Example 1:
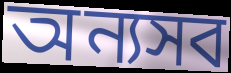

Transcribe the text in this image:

অন্যসব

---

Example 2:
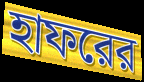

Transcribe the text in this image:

হাফরের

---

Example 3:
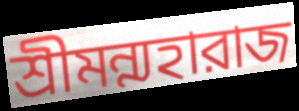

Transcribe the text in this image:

শ্রীমন্মহারাজ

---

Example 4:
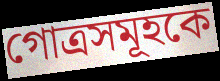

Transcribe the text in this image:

গোত্রসমূহকে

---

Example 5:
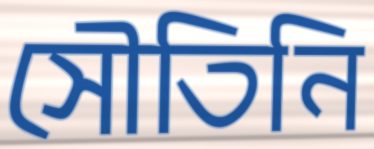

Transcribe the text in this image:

সৌতিনি